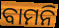
ବାମନି